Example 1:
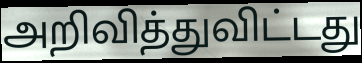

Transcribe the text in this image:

அறிவித்துவிட்டது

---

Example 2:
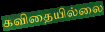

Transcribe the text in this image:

கவிதையில்லை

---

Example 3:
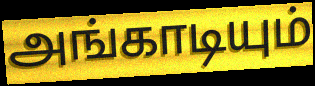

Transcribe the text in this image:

அங்காடியும்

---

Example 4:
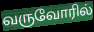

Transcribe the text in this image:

வருவோரில்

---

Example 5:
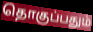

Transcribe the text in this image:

தொகுப்பதும்